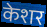
केशर